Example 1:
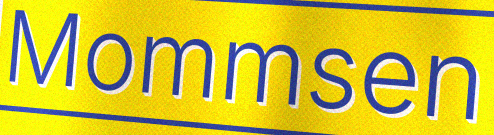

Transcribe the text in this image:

Mommsen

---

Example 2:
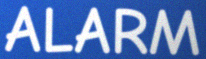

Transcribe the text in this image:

ALARM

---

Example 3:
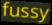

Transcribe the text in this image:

fussy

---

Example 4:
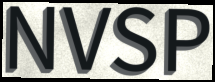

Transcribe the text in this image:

NVSP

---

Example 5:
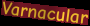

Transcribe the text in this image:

Varnacular